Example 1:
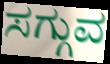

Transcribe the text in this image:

ಸಗ್ಗುವ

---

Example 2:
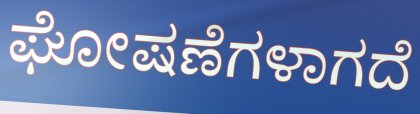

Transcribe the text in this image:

ಘೋಷಣೆಗಳಾಗದೆ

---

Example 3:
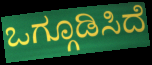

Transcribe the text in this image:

ಒಗ್ಗೂಡಿಸಿದೆ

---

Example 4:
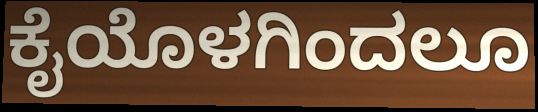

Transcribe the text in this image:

ಕೈಯೊಳಗಿಂದಲೂ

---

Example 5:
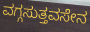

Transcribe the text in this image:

ವಗ್ಗಸುತ್ತವಸೇನ